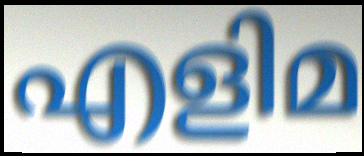
എളിമ